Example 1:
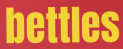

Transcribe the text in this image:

bettles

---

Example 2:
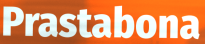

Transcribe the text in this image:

Prastabona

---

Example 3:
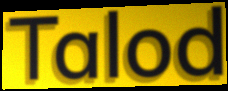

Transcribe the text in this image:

Talod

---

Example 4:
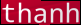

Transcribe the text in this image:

thanh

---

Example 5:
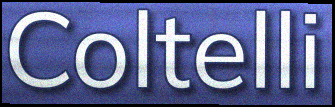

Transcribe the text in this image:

Coltelli